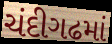
ચંદીગઢમાં